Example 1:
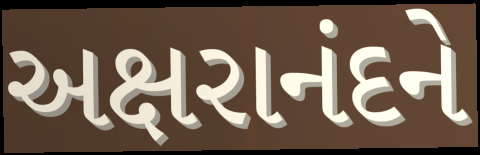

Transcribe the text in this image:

અક્ષરાનંદને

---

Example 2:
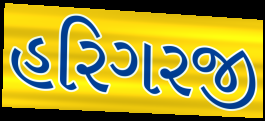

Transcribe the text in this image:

હરિગરજી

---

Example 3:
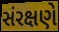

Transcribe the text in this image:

સંરક્ષણે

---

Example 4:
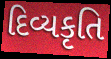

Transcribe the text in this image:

દિવ્યકૃતિ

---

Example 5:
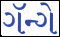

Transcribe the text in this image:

ગૅન્ગે